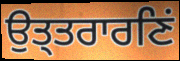
ਉਤ੍ਤਰਾਰਣਿਂ